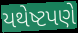
યથેષ્ટપણે